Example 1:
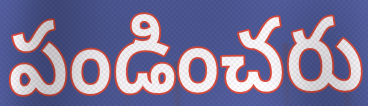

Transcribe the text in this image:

పండించరు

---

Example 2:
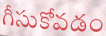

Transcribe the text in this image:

గీసుకోవడం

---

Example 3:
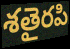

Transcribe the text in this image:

శతైరపి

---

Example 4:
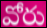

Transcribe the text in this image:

వోరు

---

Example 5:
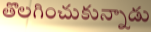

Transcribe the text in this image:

తొలగించుకున్నాడు